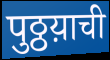
पुठ्ठय़ाची